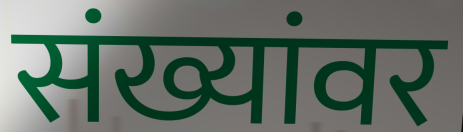
संख्यांवर